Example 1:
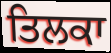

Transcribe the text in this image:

ਤਿਲਕਾ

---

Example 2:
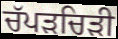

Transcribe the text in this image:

ਚੱਪੜਚਿੜੀ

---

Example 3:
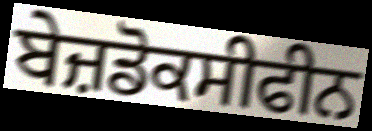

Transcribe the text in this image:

ਬੇਜ਼ਡੋਕਸੀਫੀਨ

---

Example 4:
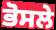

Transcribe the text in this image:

ਭੋਸਲੇ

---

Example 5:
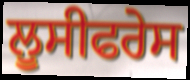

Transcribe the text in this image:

ਲੂਸੀਫਰੇਸ